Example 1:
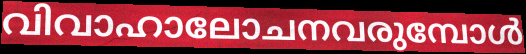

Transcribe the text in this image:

വിവാഹാലോചനവരുമ്പോൾ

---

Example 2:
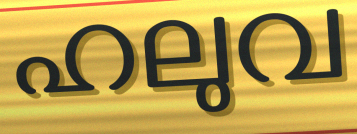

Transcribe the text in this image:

ഹലുവ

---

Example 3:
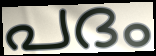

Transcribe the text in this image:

പദം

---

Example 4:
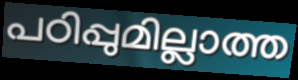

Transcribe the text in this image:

പഠിപ്പുമില്ലാത്ത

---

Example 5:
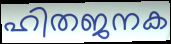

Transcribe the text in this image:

ഹിതജനക